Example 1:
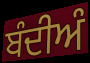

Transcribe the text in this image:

ਬੰਦੀਅੰ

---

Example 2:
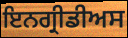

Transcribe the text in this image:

ਇਨਗ੍ਰੀਡੀਅਸ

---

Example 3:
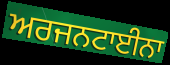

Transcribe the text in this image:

ਅਰਜਨਟਾਈਨਾ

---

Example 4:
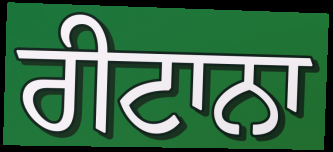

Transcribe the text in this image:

ਰੀਟਾਨਾ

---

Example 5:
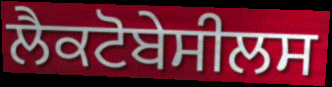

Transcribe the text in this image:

ਲੈਕਟੋਬੇਸੀਲਸ